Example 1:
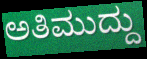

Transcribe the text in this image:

ಅತಿಮುದ್ದು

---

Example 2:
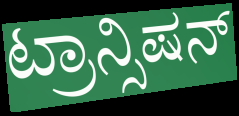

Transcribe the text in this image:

ಟ್ರಾನ್ಸಿಷನ್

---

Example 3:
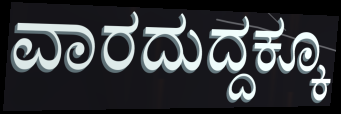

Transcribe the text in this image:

ವಾರದುದ್ದಕ್ಕೂ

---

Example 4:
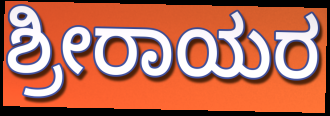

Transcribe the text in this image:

ಶ್ರೀರಾಯರ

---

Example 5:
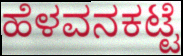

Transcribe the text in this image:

ಹೆಳವನಕಟ್ಟೆ